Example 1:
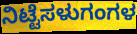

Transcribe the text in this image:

ನಿಟ್ಟೆಸಳುಗಂಗಳ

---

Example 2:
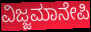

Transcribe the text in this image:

ವಿಜ್ಜಮಾನೇಪಿ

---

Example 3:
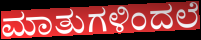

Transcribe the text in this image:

ಮಾತುಗಳಿಂದಲೆ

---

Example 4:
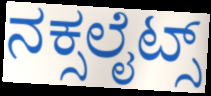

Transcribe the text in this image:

ನಕ್ಸಲೈಟ್ಸ್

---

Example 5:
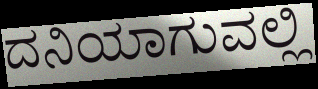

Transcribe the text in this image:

ದನಿಯಾಗುವಲ್ಲಿ